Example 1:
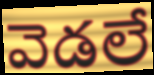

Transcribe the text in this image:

వెడలే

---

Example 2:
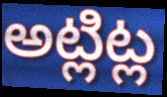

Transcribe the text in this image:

అట్లిట్ల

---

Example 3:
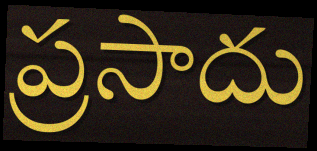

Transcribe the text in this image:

ప్రసాదు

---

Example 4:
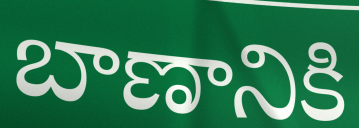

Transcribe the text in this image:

బాణానికి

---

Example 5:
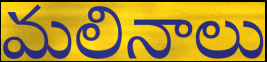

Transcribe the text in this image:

మలినాలు